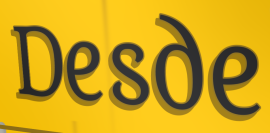
Desde